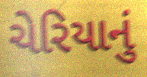
ચેરિયાનું